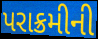
પરાક્રમીની